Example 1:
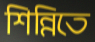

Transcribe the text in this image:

শিন্নিতে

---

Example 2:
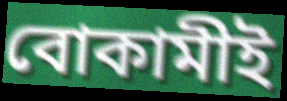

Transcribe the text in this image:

বোকামীই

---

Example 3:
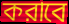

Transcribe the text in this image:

করাবে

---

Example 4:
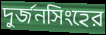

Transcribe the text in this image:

দুর্জনসিংহের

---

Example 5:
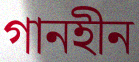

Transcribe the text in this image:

গানহীন